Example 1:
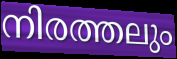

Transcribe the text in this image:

നിരത്തലും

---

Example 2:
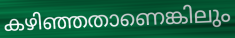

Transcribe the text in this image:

കഴിഞ്ഞതാണെങ്കിലും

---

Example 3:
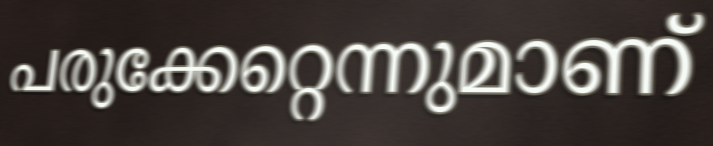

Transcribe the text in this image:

പരുക്കേറ്റെന്നുമാണ്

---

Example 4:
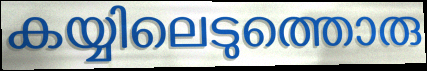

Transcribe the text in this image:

കയ്യിലെടുത്തൊരു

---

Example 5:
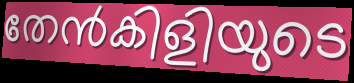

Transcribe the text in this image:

തേൻകിളിയുടെ